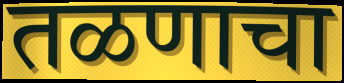
तळणाचा